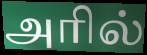
அரில்